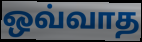
ஒவ்வாத